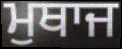
ਮੁਥਾਜ